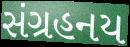
સંગ્રહનય